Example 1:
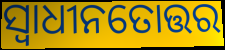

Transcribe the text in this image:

ସ୍ୱାଧୀନତୋତ୍ତର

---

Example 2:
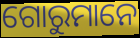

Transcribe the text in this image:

ଗୋରୁମାନେ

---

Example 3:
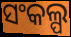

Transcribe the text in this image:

ସଂକଲ୍ପ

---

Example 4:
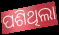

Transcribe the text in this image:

ପଶିଥିଲା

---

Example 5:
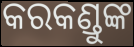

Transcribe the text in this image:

କରକଣ୍ଡୁଙ୍କ